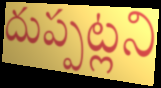
దుప్పట్లని